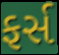
ફર્સ